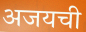
अजयची